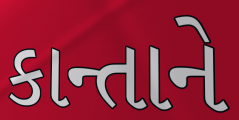
કાન્તાને